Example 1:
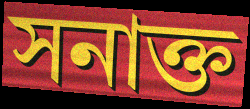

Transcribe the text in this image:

সনাক্ত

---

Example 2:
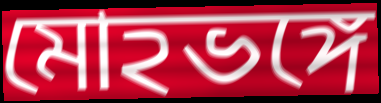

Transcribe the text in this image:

মোহভঙ্গে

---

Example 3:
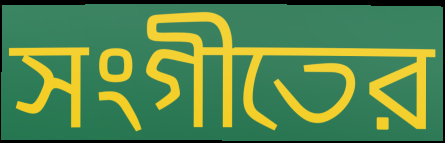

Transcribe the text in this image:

সংগীতের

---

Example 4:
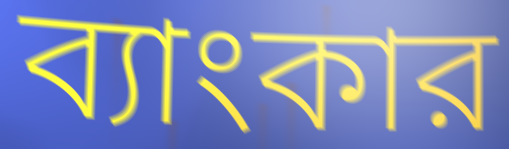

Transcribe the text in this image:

ব্যাংকার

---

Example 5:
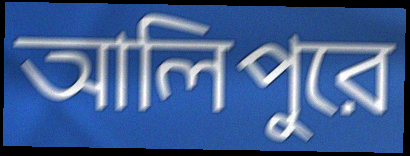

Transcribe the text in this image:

আলিপুরে